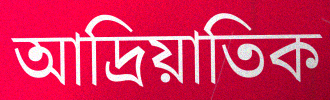
আদ্রিয়াতিক